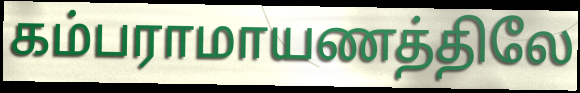
கம்பராமாயணத்திலே